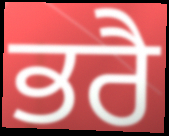
ਭਰੈ